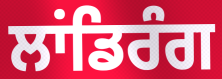
ਲਾਂਡਿਰੰਗ